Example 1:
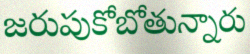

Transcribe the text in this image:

జరుపుకోబోతున్నారు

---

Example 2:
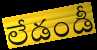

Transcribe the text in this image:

లేడండీ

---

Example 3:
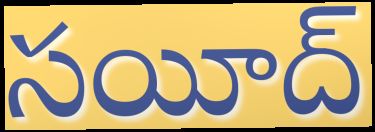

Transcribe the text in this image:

సయీద్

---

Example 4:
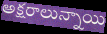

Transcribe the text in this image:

అక్షరాలున్నాయి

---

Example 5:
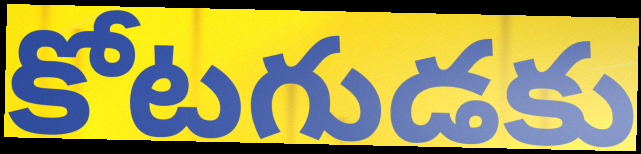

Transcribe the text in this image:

కోటగుడకు